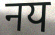
नय